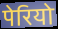
पेरियो